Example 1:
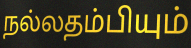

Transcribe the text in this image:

நல்லதம்பியும்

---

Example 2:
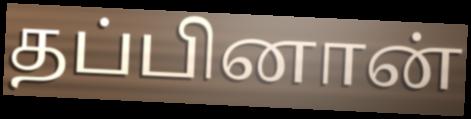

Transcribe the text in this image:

தப்பினான்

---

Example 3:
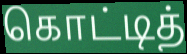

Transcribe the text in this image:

கொட்டித்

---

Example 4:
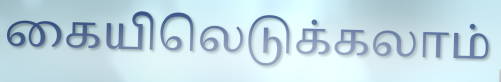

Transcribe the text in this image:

கையிலெடுக்கலாம்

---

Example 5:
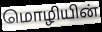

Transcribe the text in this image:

மொழியின்